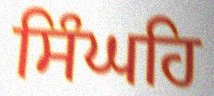
ਸਿੰਘਹਿ